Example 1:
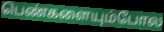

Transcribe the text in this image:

பெண்களையும்போல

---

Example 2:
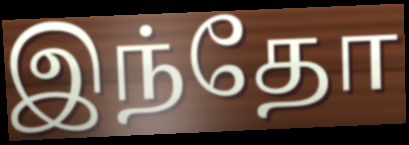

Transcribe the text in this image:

இந்தோ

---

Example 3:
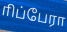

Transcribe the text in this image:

ரிப்பேரா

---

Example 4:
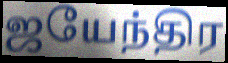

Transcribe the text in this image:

ஜயேந்திர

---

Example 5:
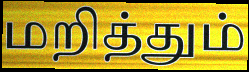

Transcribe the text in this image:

மறித்தும்